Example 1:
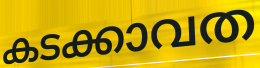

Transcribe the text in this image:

കടക്കാവത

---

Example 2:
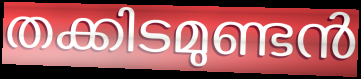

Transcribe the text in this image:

തക്കിടമുണ്ടൻ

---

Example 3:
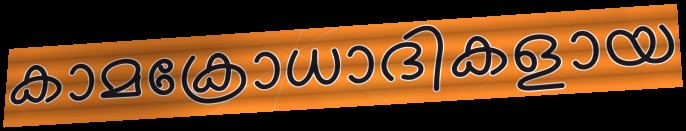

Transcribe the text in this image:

കാമക്രോധാദികളായ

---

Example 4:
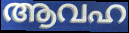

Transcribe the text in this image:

ആവഹ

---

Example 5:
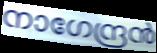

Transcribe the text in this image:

നാഗേന്ദ്രൻ